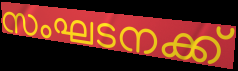
സംഘടനക്ക്